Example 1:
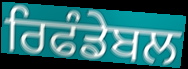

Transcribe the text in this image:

ਰਿਫੰਡੇਬਲ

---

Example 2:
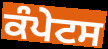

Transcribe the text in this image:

ਕੰਪੇਟਸ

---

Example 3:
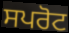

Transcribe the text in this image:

ਸਪਰੋਟ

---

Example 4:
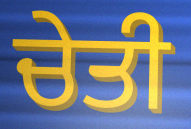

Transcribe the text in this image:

ਚੇਤੀ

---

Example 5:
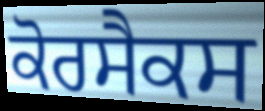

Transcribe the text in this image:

ਕੋਰਸੈਕਸ